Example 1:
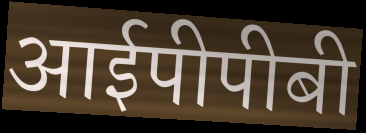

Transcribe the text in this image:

आईपीपीबी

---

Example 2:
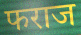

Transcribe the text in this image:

फराज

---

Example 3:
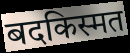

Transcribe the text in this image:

बदकिस्‍मत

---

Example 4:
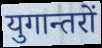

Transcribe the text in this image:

युगान्तरों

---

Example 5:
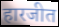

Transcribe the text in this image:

हारजीत